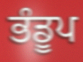
ਭੰਡੂਪ